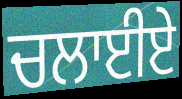
ਚਲਾਈਏ